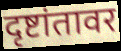
दृष्टांतावर